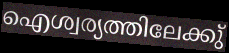
ഐശ്വര്യത്തിലേക്കു്